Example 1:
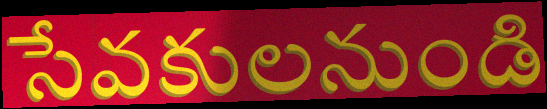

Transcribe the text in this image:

సేవకులనుండి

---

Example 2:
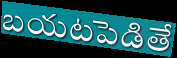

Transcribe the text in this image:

బయటపెడితే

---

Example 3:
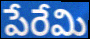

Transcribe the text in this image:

పేరేమి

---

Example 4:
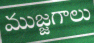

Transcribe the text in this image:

ముజ్జగాలు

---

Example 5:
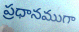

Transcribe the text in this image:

ప్రధానముగా